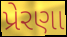
પ્રેરણા